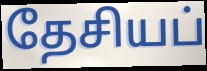
தேசியப்